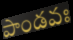
పాండవః